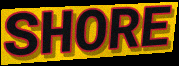
SHORE